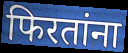
फिरतांना